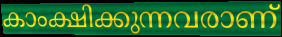
കാംക്ഷിക്കുന്നവരാണ്